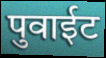
पुवाईट